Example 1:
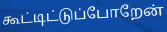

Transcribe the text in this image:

கூட்டிட்டுப்போறேன்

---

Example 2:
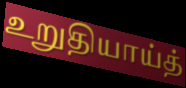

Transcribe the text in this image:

உறுதியாய்த்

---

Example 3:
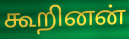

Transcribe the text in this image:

கூறினன்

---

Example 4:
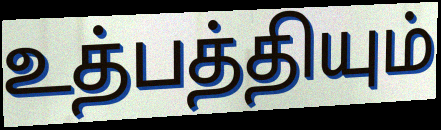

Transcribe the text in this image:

உத்பத்தியும்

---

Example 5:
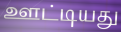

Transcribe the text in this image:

ஊட்டியது